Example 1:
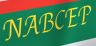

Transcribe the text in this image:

NABCEP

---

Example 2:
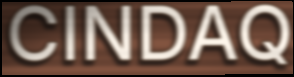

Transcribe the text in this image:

CINDAQ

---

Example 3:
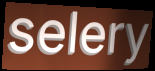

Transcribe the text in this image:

selery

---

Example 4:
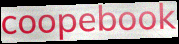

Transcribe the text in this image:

coopebook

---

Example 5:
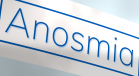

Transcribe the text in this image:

Anosmia